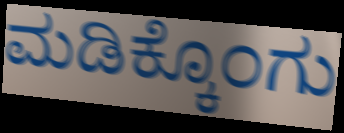
ಮಡಿಕ್ಕೊಂಗು